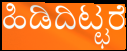
ಹಿಡಿದಿಟ್ಟರೆ